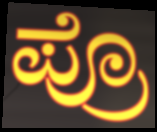
ಪ್ರೊ